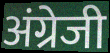
अंग्रेजी